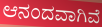
ಆನಂದವಾಗಿವೆ